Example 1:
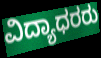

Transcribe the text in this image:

ವಿದ್ಯಾಧರರು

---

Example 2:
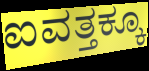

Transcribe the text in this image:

ಐವತ್ತಕ್ಕೂ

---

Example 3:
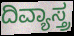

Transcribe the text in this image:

ದಿವ್ಯಾಸ್ತ್ರ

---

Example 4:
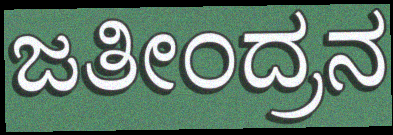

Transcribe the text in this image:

ಜತೀಂದ್ರನ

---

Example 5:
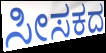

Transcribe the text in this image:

ಸೀಸಕದ